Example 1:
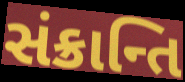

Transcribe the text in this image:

સંક્રાન્તિ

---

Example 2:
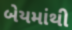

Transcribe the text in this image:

બેયમાંથી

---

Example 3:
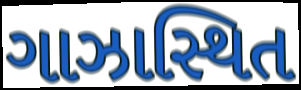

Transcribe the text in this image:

ગાઝાસ્થિત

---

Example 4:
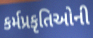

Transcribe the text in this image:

કર્મપ્રકૃતિઓની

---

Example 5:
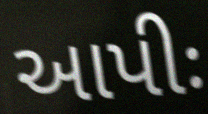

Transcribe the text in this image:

આપીઃ